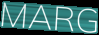
MARG